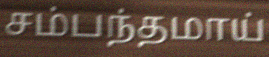
சம்பந்தமாய்